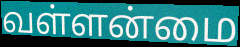
வள்ளன்மை